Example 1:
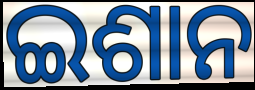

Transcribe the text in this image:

ଇଶାନ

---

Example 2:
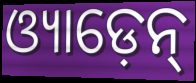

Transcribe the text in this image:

ଓ୍ୟାଡ଼େନ୍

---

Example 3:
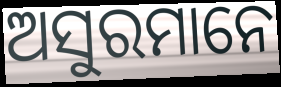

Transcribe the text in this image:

ଅସୁରମାନେ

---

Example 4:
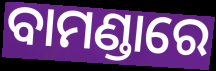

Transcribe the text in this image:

ବାମଣ୍ଡାରେ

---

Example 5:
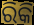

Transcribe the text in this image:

ରିକି